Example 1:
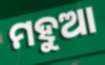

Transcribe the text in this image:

ମହୁଆ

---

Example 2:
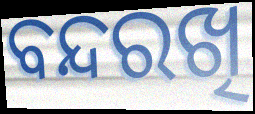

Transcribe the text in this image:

ବନ୍ଦରଖି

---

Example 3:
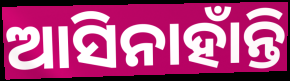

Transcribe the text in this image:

ଆସିନାହାଁନ୍ତି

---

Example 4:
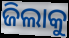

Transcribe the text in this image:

ଜିଲାକୁ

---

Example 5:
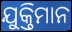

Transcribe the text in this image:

ଯୁକ୍ତିମାନ